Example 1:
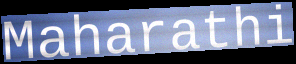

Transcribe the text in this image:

Maharathi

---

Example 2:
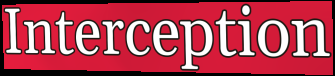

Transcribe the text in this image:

Interception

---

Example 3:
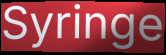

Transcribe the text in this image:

Syringe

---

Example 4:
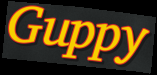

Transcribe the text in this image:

Guppy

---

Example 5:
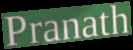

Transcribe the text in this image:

Pranath